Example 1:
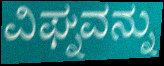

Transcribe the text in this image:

ವಿಘ್ನವನ್ನು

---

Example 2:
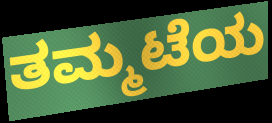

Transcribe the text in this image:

ತಮ್ಮಟೆಯ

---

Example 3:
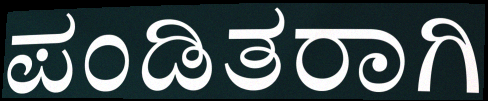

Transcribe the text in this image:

ಪಂಡಿತರಾಗಿ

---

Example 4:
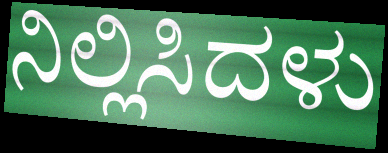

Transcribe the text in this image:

ನಿಲ್ಲಿಸಿದಳು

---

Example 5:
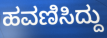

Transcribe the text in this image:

ಹವಣಿಸಿದ್ದು